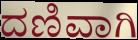
ದಣಿವಾಗಿ